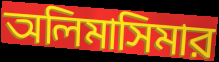
অলিমাসিমার